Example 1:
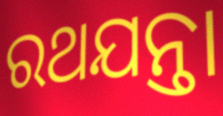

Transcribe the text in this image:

ରଥଯନ୍ତା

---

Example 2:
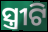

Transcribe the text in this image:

ସ୍ତ୍ରୀଟି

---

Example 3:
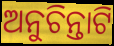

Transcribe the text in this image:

ଅନୁଚିନ୍ତାଟି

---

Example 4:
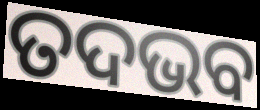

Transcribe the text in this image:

ତଦଭବ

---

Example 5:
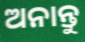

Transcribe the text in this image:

ଅନାନ୍ତୁ